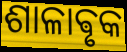
ଶାଳାଵୃକ